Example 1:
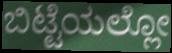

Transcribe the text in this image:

ಬಿಟ್ಟೆಯಲ್ಲೋ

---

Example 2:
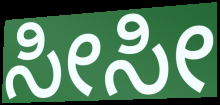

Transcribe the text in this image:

ಸೀಸೀ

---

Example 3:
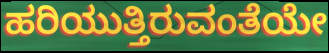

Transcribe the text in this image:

ಹರಿಯುತ್ತಿರುವಂತೆಯೇ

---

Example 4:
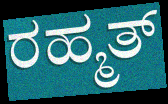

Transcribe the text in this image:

ರಹ್ಮತ್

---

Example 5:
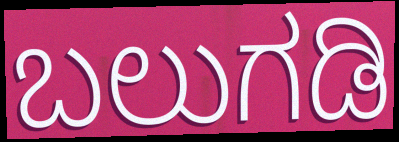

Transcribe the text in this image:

ಬಲುಗಡಿ